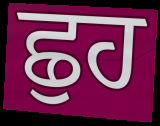
ਛੁਹ